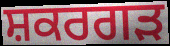
ਸ਼ਕਰਗੜ